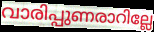
വാരിപ്പുണരാറില്ലേ